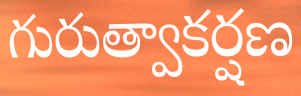
గురుత్వాకర్షణ